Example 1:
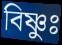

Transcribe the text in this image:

বিষ্ণুঃ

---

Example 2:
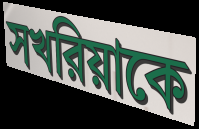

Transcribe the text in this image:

সখরিয়াকে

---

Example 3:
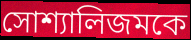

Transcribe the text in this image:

সোশ্যালিজমকে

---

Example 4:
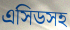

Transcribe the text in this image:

এসিডসহ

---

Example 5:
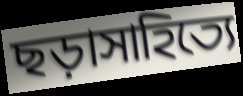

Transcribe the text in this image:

ছড়াসাহিত্যে